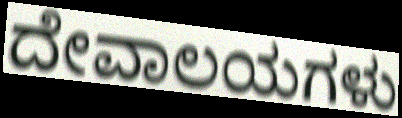
ದೇವಾಲಯಗಳು